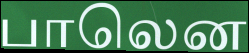
பாலென